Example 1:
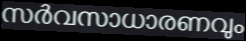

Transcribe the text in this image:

സർവസാധാരണവും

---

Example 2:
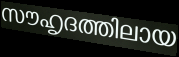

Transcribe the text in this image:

സൗഹൃദത്തിലായ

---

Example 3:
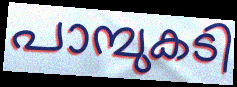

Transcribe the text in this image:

പാമ്പുകടി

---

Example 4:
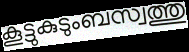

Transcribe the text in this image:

കൂട്ടുകുടുംബസ്വത്തു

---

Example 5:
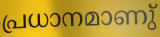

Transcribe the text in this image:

പ്രധാനമാണു്